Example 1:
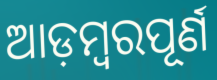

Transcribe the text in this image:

ଆଡ଼ମ୍ବରପୂର୍ଣ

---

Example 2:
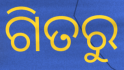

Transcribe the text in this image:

ଗିତରୁ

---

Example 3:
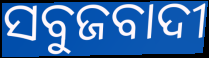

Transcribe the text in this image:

ସବୁଜବାଦୀ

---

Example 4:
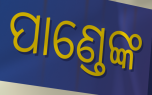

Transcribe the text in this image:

ପାଣ୍ଡେଙ୍କ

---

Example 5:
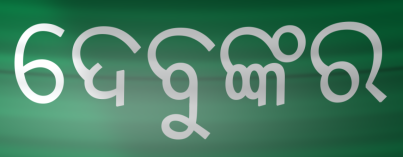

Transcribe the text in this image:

ଦେବୁଙ୍କର